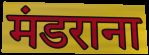
मंडराना